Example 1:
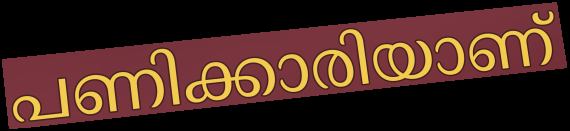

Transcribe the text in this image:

പണിക്കാരിയാണ്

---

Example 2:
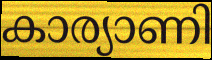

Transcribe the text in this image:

കാര്യാണി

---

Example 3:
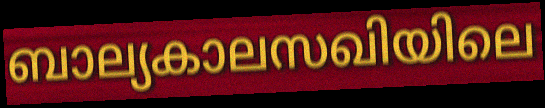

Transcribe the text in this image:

ബാല്യകാലസഖിയിലെ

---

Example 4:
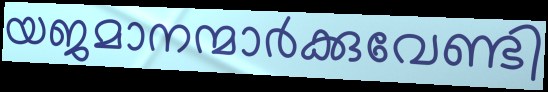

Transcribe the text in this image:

യജമാനന്മാർക്കുവേണ്ടി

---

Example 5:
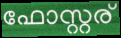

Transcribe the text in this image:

ഫോസ്റ്റര്